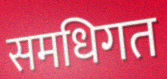
समधिगत